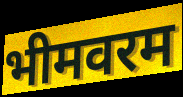
भीमवरम